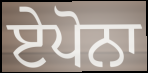
ਏਪੋਨਾ